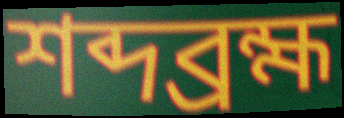
শব্দব্রহ্ম